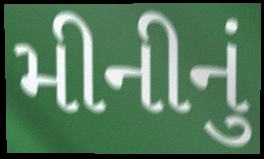
મીનીનું